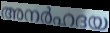
അനർഹദയ